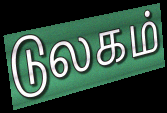
டுலகம்